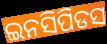
ଇନସିପିଡସ